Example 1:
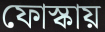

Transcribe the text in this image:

ফোস্কায়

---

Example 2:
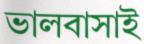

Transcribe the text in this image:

ভালবাসাই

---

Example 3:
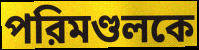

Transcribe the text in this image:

পরিমণ্ডলকে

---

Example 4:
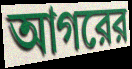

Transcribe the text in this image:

আগরের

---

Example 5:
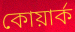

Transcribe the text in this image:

কোয়ার্ক